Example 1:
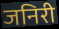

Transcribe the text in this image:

जनिरी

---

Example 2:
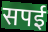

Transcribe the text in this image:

सपई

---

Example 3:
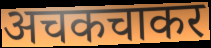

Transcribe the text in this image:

अचकचाकर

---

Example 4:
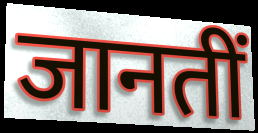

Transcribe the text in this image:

जानतीं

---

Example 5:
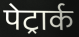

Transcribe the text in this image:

पेट्रार्क